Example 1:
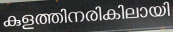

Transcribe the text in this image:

കുളത്തിനരികിലായി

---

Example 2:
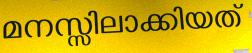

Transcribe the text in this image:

മനസ്സിലാക്കിയത്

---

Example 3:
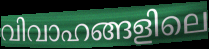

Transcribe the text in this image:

വിവാഹങ്ങളിലെ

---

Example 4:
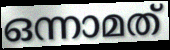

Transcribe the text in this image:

ഒന്നാമത്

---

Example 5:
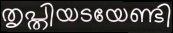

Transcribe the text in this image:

തൃപ്തിയടയേണ്ടി